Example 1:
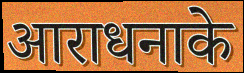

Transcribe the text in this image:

आराधनाके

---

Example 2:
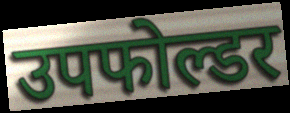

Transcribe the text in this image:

उपफोल्डर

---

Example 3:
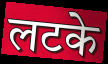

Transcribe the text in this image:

लटके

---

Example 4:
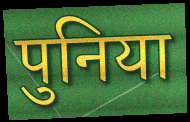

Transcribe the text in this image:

पुनिया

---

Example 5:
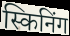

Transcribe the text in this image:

स्किनिंग